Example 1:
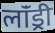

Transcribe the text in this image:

लॉंड्री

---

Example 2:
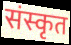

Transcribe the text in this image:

संस्कृत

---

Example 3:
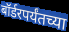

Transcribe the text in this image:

बॉर्डरपर्यंतच्या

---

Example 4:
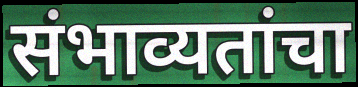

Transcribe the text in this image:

संभाव्यतांचा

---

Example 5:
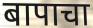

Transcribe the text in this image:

बापाचा